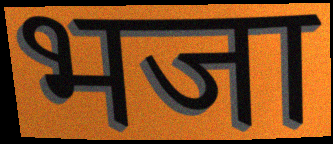
भजा